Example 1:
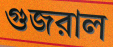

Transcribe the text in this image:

গুজরাল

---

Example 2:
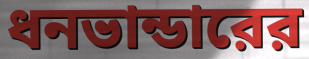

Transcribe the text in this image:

ধনভান্ডারের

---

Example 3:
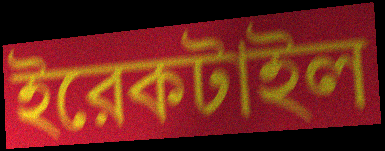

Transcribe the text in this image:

ইরেকটাইল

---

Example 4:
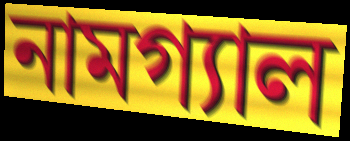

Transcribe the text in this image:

নামগ্যাল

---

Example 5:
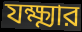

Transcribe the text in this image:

যক্ষ্মার